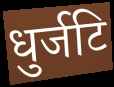
धुर्जटि